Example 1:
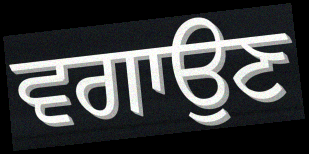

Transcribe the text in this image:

ਵਗਾਉਣ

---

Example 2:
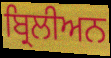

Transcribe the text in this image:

ਬ੍ਰਿਲੀਅਨ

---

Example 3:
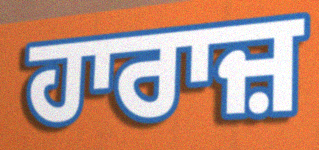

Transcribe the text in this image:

ਹਾਰਾਜ਼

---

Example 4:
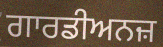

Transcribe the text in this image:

ਗਾਰਡੀਅਨਜ਼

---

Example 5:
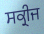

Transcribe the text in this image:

ਸਕ੍ਰੀਜ